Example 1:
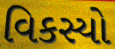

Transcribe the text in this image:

વિકસ્યો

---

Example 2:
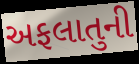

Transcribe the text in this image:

અફલાતુની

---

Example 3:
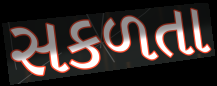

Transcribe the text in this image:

સકળતા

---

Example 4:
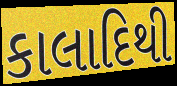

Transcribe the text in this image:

કાલાદિથી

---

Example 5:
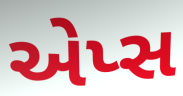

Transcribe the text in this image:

એપ્સ